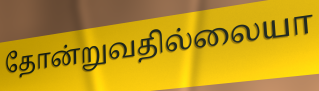
தோன்றுவதில்லையா